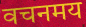
वचनमय